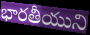
భారతీయుని